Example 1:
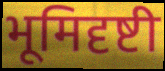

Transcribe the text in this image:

भूमिदृष्टी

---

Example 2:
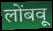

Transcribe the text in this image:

लोंबवू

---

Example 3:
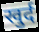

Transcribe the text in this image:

खुर्द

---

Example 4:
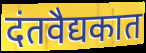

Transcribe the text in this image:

दंतवैद्यकात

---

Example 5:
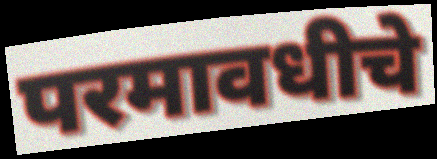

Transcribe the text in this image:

परमावधीचे